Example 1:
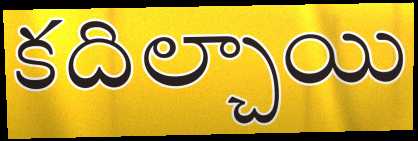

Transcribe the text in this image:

కదిల్చాయి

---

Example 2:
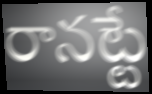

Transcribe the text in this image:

రానట్టే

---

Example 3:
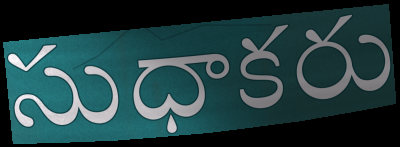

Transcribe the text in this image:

సుధాకరు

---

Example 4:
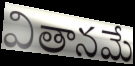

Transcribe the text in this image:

వితానమే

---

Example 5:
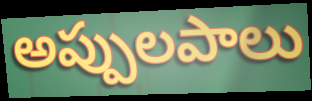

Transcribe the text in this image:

అప్పులపాలు